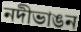
নদীভাঙন